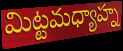
మిట్టమధ్యాహ్న